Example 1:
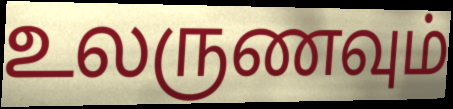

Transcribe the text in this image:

உலருணவும்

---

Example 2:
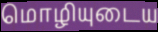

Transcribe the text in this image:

மொழியுடைய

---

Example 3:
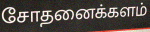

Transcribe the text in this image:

சோதனைக்களம்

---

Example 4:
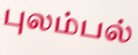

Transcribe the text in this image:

புலம்பல்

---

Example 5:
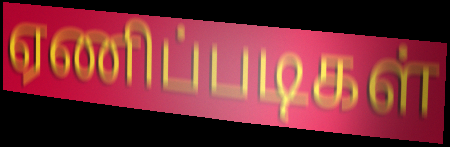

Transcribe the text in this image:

ஏணிப்படிகள்